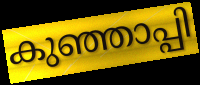
കുഞ്ഞാപ്പി